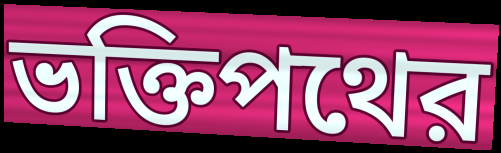
ভক্তিপথের